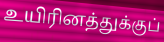
உயிரினத்துக்குப்